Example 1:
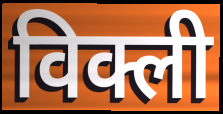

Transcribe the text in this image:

विक्ली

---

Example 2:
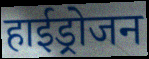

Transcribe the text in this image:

हाईड्रोजन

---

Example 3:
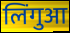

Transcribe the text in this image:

लिंगुआ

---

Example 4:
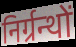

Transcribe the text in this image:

निर्ग्रन्थों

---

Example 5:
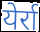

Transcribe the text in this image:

येर्रा